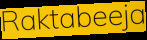
Raktabeeja